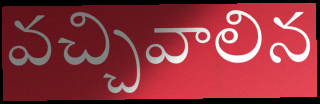
వచ్చివాలిన